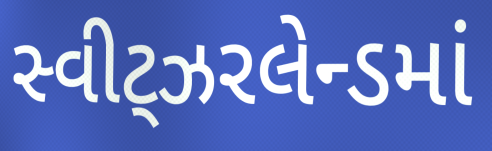
સ્વીટ્ઝરલેન્ડમાં